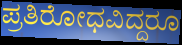
ಪ್ರತಿರೋಧವಿದ್ದರೂ